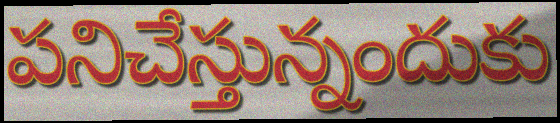
పనిచేస్తున్నందుకు